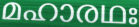
മഹാരഥഃ